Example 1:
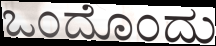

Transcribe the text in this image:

ಒಂದೊಂದು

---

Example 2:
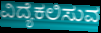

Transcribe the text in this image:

ವಿದ್ಯೆಕಲಿಸುವ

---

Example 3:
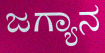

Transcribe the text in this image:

ಜಗ್ಯಾನ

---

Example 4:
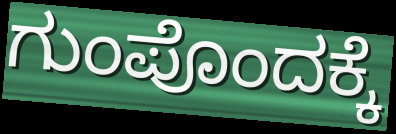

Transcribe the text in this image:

ಗುಂಪೊಂದಕ್ಕೆ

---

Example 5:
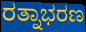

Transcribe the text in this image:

ರತ್ನಾಭರಣ